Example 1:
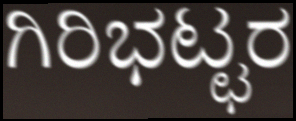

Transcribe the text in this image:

ಗಿರಿಭಟ್ಟರ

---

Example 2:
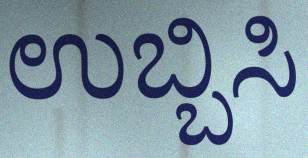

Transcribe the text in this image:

ಉಬ್ಬಿಸಿ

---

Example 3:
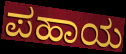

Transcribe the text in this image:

ಪಹಾಯ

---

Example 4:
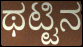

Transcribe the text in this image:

ಥಟ್ಟಿನ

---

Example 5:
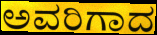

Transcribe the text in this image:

ಅವರಿಗಾದ